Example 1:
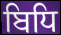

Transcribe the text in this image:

ਬਿਧਿ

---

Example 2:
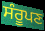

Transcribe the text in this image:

ਸੰਰੂਪਣ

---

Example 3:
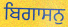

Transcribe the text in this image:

ਬਿਗਾਸਨੁ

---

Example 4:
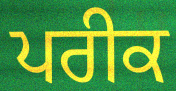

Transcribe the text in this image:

ਪਰੀਕ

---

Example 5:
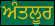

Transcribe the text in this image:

ਅੰਤਲੂਰ